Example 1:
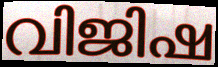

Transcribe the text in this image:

വിജിഷ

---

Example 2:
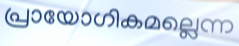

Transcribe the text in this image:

പ്രായോഗികമല്ലെന്ന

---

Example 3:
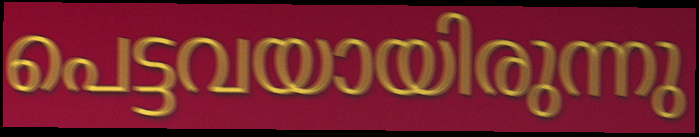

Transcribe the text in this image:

പെട്ടവയായിരുന്നു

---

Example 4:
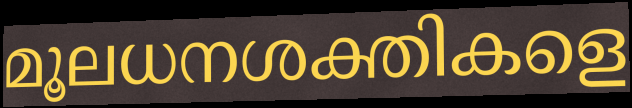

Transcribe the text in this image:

മൂലധനശക്തികളെ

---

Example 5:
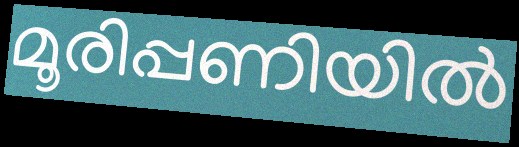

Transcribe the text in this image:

മൂരിപ്പണിയിൽ